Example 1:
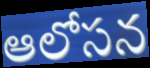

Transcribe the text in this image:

ఆలోసన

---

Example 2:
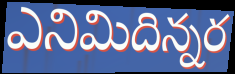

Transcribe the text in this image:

ఎనిమిదిన్నర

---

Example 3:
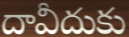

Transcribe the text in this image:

దావీదుకు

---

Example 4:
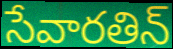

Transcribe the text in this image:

సేవారతిన్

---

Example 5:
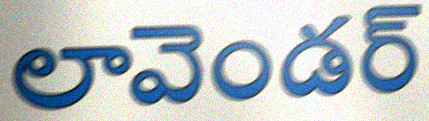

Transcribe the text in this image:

లావెండర్